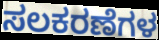
ಸಲಕರಣೆಗಳ